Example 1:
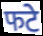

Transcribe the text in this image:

फटे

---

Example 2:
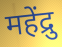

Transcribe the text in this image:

महेंद्रु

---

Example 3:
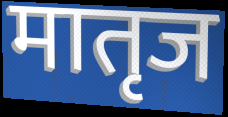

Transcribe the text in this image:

मातृज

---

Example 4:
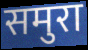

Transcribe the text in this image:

समुरा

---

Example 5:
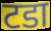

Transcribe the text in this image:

टडा